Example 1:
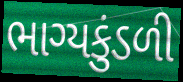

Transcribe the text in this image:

ભાગ્યકુંડળી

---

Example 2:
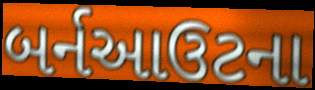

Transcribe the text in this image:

બર્નઆઉટના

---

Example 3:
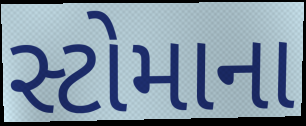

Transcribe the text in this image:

સ્ટોમાના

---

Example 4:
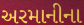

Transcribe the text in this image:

અરમાનીના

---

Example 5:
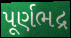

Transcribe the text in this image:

પૂર્ણભદ્ર